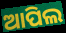
ଆପିଲ